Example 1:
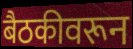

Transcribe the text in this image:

बैठकीवरून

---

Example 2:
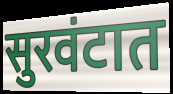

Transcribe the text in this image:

सुरवंटात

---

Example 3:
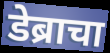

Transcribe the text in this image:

डेब्राचा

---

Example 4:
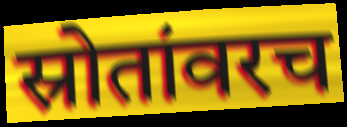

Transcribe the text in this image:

स्रोतांवरच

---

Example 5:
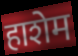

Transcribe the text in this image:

हाशेम